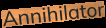
Annihilator